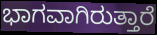
ಭಾಗವಾಗಿರುತ್ತಾರೆ